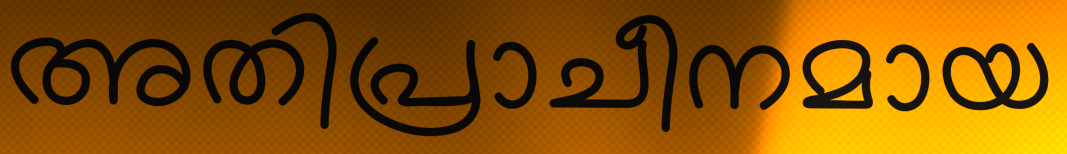
അതിപ്രാചീനമായ